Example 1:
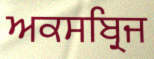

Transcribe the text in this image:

ਅਕਸਬ੍ਰਿਜ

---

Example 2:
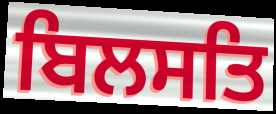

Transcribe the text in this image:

ਬਿਲਸਤਿ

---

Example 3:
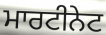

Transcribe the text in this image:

ਮਾਰਟੀਨੇਟ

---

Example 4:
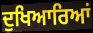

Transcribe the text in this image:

ਦੁਖਿਆਰਿਆਂ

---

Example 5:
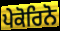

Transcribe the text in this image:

ਪੇਕੋਰਿਨੋ